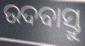
ଉଦବାସ୍ତୁ